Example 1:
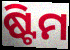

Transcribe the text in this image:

ଷ୍ଟିମ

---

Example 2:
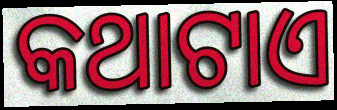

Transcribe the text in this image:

କଥାଟାଏ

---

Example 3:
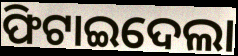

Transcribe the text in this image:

ଫିଟାଇଦେଲା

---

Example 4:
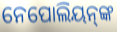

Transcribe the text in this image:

ନେପୋଲିୟନ୍‍ଙ୍କ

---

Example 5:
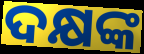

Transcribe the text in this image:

ଦକ୍ଷଙ୍କ